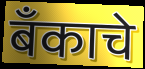
बँकाचे